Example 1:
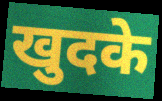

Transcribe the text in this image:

खुदके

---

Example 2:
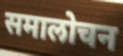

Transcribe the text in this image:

समालोचन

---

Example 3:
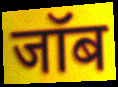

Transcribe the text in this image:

जॉब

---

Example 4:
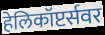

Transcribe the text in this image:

हेलिकॉप्टर्सवर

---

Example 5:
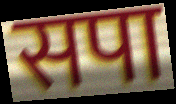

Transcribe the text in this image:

सपा